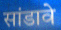
सांडावे